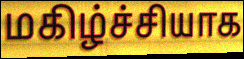
மகிழ்ச்சியாக